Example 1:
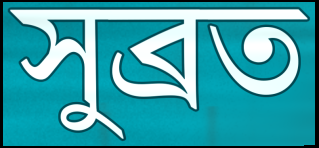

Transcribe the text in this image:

সুব্ৰত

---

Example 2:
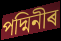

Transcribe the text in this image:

পদ্মিনীৰ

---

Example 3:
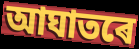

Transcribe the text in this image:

আঘাতৰে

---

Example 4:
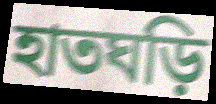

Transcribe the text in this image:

হাতঘড়ি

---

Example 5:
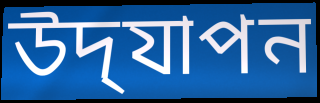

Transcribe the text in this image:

উদ্‌যাপন